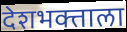
देशभक्ताला